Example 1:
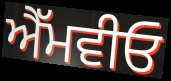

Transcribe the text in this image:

ਐੱਮਵੀਓ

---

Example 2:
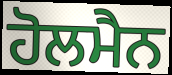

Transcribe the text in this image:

ਹੋਲਮੈਨ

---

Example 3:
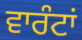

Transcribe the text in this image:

ਵਾਰੰਟਾਂ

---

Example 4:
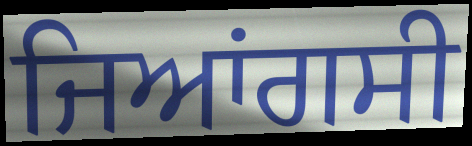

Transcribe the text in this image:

ਜਿਆਂਗਸੀ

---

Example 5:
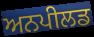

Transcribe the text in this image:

ਅਨਪੀਲਡ